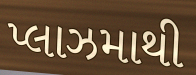
પ્લાઝમાથી